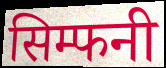
सिम्फनी